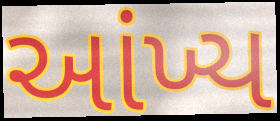
આંખ્ય